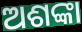
ଅଶଙ୍କା